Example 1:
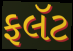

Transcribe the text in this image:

ફલૅટ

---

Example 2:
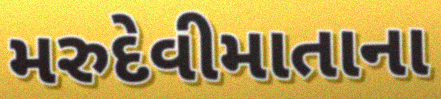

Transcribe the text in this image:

મરુદેવીમાતાના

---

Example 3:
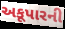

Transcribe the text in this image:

અકૂપારની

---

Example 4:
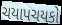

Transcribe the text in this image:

ચયાપચયકો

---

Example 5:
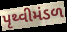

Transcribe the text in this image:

પૃથ્વીમંડળ